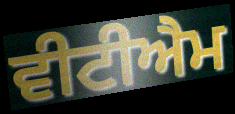
ਵੀਟੀਐਮ